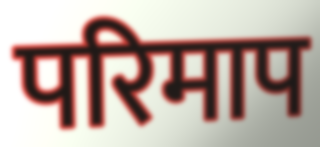
परिमाप